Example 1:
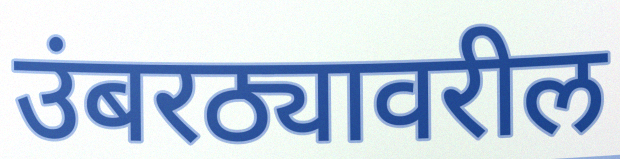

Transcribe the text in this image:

उंबरठ्यावरील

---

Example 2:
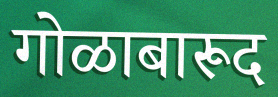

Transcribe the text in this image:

गोळाबारूद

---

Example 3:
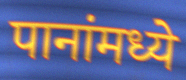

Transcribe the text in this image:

पानांमध्ये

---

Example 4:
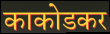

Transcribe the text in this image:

काकोडकर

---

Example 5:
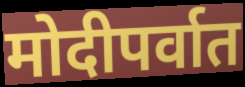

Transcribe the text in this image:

मोदीपर्वात